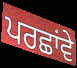
ਪਰਛਾਂਵੇ